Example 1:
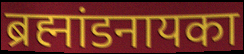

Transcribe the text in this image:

ब्रह्मांडनायका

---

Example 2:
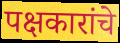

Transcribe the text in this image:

पक्षकारांचे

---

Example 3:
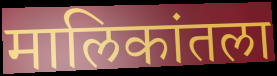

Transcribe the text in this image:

मालिकांतला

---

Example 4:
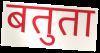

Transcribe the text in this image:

बतुता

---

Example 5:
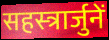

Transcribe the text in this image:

सहस्त्रार्जुनें